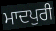
ਮਾਦਪੁਰੀ